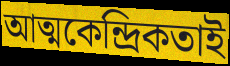
আত্মকেন্দ্রিকতাই